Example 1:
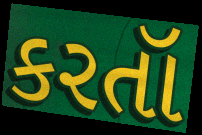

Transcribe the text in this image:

કરતૉ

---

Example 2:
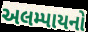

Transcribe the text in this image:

અલમ્પાયનો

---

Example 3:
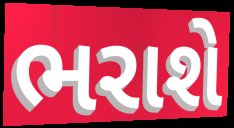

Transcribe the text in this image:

ભરાશે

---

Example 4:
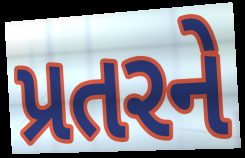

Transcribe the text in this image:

પ્રતરને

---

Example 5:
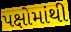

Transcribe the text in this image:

પક્ષોમાંથી